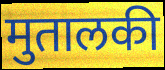
मुतालकी